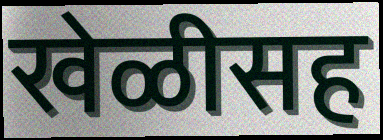
खेळीसह